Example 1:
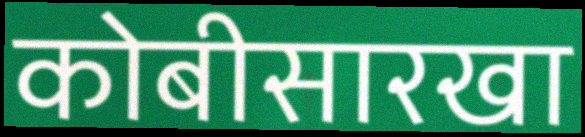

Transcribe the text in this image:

कोबीसारखा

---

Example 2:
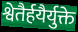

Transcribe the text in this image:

श्वेतैर्हयैर्युक्ते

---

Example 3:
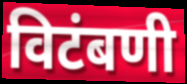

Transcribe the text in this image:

विटंबणी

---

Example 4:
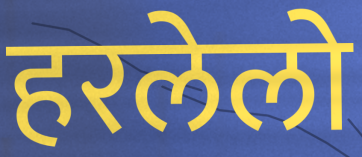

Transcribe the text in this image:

हरलेलो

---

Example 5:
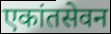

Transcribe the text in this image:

एकांतसेवन